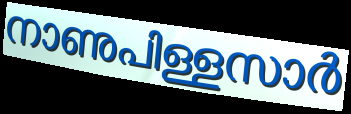
നാണുപിള്ളസാർ